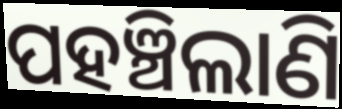
ପହଞ୍ଚିଲାଣି